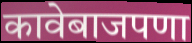
कावेबाजपणा